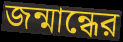
জন্মান্ধের